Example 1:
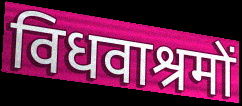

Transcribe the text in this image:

विधवाश्रमों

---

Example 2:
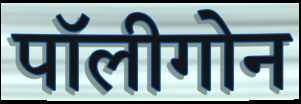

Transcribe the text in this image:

पॉलीगोन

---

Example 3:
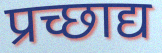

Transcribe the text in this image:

प्रच्छाद्य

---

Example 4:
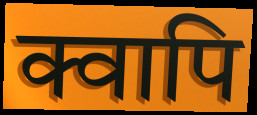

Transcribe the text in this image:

क्वापि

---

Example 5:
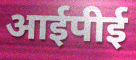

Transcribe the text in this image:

आईपीई